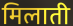
मिलाती